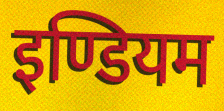
इण्डियम